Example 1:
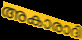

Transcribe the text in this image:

അകാരാദി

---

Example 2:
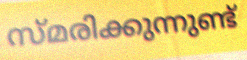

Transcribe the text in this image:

സ്മരിക്കുന്നുണ്ട്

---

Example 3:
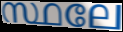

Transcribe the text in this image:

സ്ഥലേ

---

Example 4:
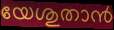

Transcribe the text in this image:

യേശുതാൻ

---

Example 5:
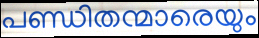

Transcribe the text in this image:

പണ്ഡിതന്മാരെയും